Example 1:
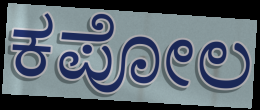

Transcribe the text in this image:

ಕಪೋಲ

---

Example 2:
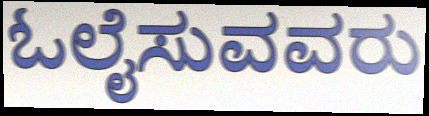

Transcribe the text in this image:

ಓಲೈಸುವವರು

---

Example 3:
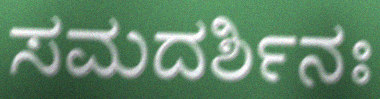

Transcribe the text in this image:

ಸಮದರ್ಶಿನಃ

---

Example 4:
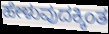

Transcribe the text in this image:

ಹೇಳುವುದಕ್ಕಿಂತ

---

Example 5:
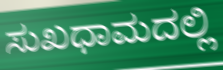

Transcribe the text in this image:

ಸುಖಧಾಮದಲ್ಲಿ